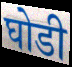
घोडी